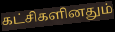
கட்சிகளினதும்